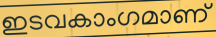
ഇടവകാംഗമാണ്